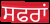
ਸਫਰਾਂ